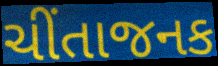
ચીંતાજનક